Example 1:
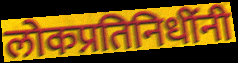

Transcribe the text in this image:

लोकप्रतिनिधींनी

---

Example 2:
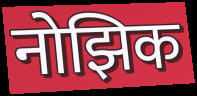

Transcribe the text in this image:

नोझिक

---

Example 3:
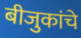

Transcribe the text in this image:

बीजुकांचे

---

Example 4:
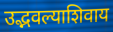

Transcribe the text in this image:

उद्भवल्याशिवाय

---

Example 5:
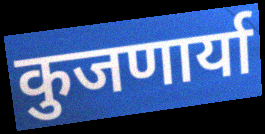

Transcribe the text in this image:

कुजणार्या